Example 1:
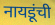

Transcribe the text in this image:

नायडूंची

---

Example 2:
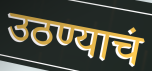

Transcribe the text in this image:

उठण्याचं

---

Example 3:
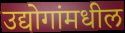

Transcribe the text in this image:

उद्योगांमधील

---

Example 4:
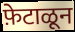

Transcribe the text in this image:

फ़ेटाळून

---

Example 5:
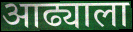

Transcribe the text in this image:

आढ्याला